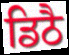
ਡਿਠੈ